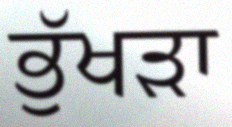
ਭੁੱਖੜਾ